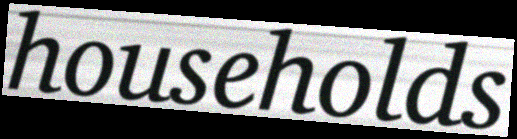
households